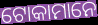
ଟୋକାମାନେ